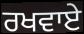
ਰਖਵਾਏ